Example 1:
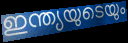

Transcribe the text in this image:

ഇന്ത്യയുടെയും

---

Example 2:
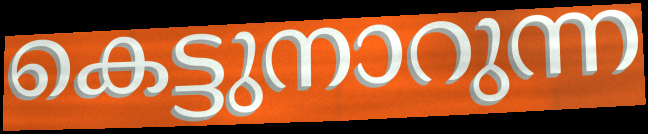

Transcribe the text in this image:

കെട്ടുനാറുന്ന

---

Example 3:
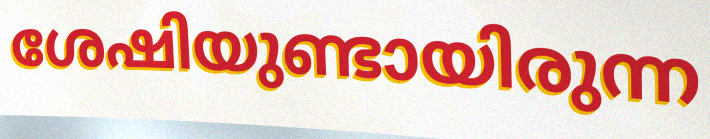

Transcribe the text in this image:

ശേഷിയുണ്ടായിരുന്ന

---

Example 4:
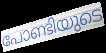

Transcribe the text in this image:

പോണ്ടിയുടെ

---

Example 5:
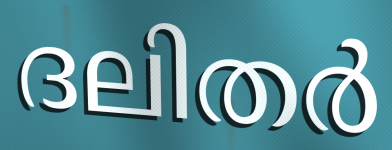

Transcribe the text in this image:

ദലിതർ